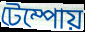
টেম্পোয়